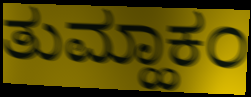
ತುಮ್ಹಾಕಂ